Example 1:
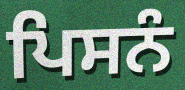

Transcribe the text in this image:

ਪਿਸਨੰ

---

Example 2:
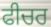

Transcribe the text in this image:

ਫੀਚਰ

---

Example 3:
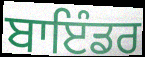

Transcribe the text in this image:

ਬਾਇੰਡਰ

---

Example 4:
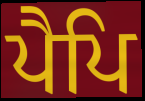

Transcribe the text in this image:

ਪੈਪਿ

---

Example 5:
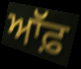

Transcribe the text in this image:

ਆੱਫ਼